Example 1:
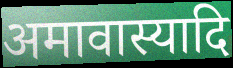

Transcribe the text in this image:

अमावास्यादि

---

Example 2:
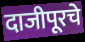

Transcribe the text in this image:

दाजीपूरचे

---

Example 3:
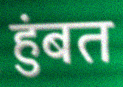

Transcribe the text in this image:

हुंबत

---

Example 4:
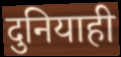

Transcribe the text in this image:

दुनियाही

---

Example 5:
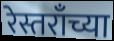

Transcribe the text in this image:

रेस्तराँच्या